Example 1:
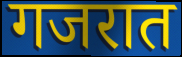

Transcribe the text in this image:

गजरात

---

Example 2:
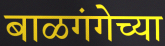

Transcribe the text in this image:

बाळगंगेच्या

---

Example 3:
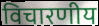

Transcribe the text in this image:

विचारणीय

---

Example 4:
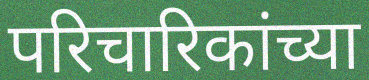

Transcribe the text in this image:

परिचारिकांच्या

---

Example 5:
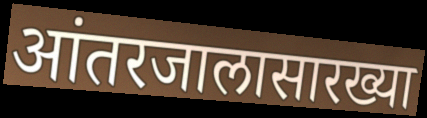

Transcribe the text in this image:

आंतरजालासारख्या